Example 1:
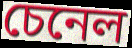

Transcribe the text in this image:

চেনেল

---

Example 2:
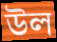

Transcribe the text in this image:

উল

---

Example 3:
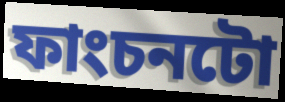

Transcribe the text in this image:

ফাংচনটো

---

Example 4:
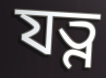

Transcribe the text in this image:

যত্ন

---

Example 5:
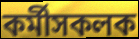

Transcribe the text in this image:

কৰ্মীসকলক